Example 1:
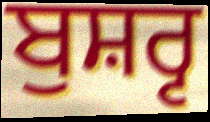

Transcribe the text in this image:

ਬੁਸ਼ਰ੍ਟ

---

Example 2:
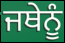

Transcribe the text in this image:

ਜਥੇਨੂੰ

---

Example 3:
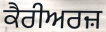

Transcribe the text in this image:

ਕੈਰੀਅਰਜ਼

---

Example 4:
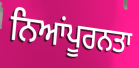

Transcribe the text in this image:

ਨਿਆਂਪੂਰਨਤਾ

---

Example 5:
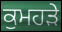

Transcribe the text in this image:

ਕੁਮਹੜੇ